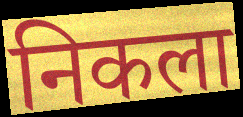
निकला